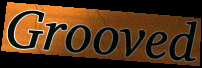
Grooved